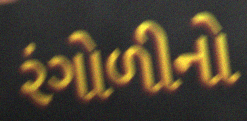
રંગોળીનો